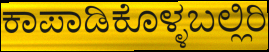
ಕಾಪಾಡಿಕೊಳ್ಳಬಲ್ಲಿರಿ